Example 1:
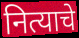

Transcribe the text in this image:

नित्याचे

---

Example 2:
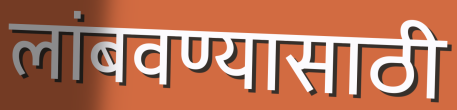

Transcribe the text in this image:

लांबवण्यासाठी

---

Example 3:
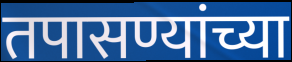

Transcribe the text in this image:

तपासण्यांच्या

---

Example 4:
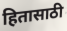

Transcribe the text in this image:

हितासाठी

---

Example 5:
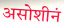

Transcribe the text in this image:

असोशीनं